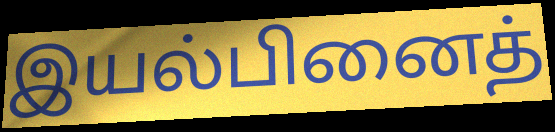
இயல்பினைத்